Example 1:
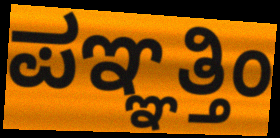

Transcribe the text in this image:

ಪಞ್ಞತ್ತಿಂ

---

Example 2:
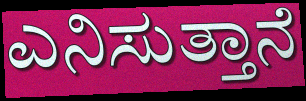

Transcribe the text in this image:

ಎನಿಸುತ್ತಾನೆ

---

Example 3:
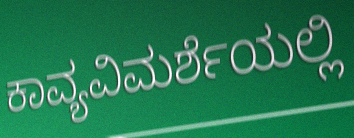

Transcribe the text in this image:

ಕಾವ್ಯವಿಮರ್ಶೆಯಲ್ಲಿ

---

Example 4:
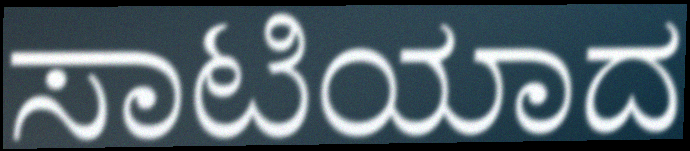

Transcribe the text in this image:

ಸಾಟಿಯಾದ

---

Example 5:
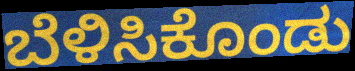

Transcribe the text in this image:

ಬೆಳಿಸಿಕೊಂಡು